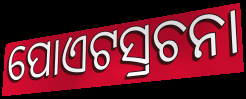
ପୋଏଟସ୍ରଚନା